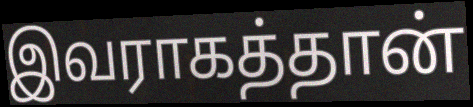
இவராகத்தான்